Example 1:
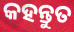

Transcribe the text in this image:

କହନ୍ତୁତ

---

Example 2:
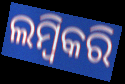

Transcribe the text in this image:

ଲମ୍ବିକରି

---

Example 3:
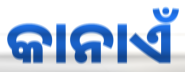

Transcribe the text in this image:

କାନାଏଁ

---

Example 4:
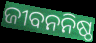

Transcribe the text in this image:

ଜୀବନନିଷ୍ଠ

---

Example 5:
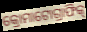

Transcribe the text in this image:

କ୍ରୋମାଟୋଗ୍ରାଫିକ୍